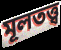
মূলতত্ত্ব